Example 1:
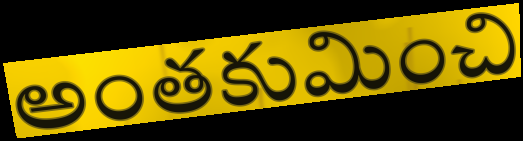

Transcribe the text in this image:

అంతకుమించి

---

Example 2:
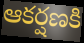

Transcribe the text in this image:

ఆకర్షణకి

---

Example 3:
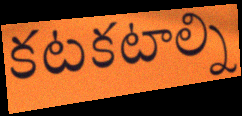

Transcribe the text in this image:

కటకటాల్ని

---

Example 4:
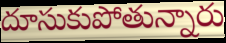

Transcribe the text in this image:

దూసుకుపోతున్నారు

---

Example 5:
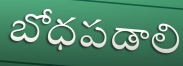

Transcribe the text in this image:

బోధపడాలి